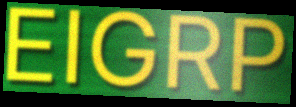
EIGRP